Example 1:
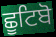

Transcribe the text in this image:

ਛੂਟਿਬੋ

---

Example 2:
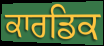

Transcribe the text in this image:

ਕਾਰਡਿਕ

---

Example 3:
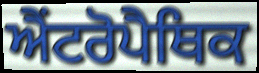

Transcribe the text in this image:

ਐਂਟਰੋਪੈਥਿਕ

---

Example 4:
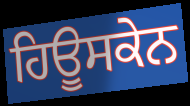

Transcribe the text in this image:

ਹਿਊਸਕੇਨ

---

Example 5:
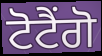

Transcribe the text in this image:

ਟੋਟੈਂਗੋ